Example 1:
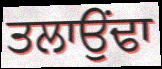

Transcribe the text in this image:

ਤਲਾਉਂਢਾ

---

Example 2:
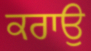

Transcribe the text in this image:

ਕਰਾਉ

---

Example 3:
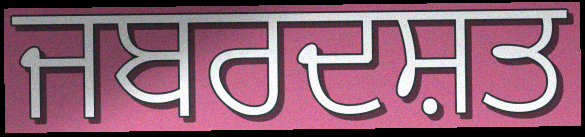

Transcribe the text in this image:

ਜਬਰਦਸ਼ਤ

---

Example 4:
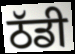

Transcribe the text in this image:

ਠੱਡੀ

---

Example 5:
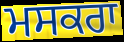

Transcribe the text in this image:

ਮਸਕਰਾ